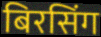
बिरसिंग